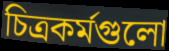
চিত্রকর্মগুলো